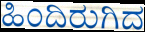
ಹಿಂದಿರುಗಿದ